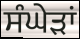
ਸੰਘੇੜਾਂ